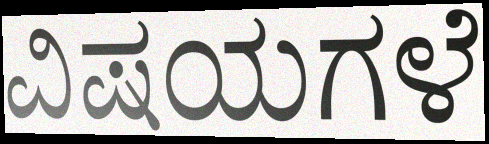
ವಿಷಯಗಳೆ